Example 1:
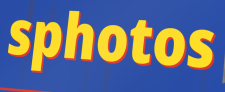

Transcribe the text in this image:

sphotos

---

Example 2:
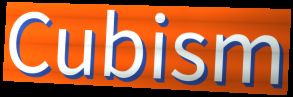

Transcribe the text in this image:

Cubism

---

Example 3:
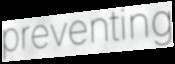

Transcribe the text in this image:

preventing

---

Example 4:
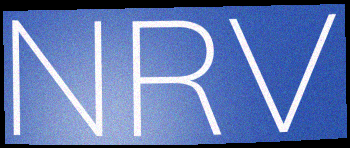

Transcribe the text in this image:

NRV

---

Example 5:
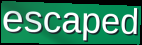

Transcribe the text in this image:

escaped